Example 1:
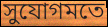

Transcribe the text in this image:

সুযোগমতে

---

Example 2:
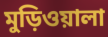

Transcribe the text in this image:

মুড়িওয়ালা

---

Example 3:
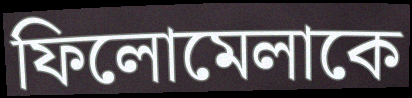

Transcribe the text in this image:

ফিলোমেলাকে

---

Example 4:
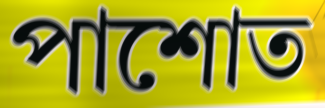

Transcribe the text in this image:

পাশোত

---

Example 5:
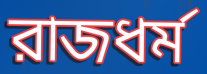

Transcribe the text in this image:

রাজধর্ম